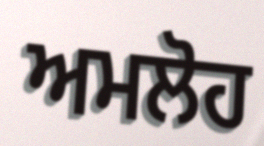
ਅਮਲੋਹ